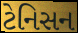
ટેનિસન